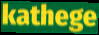
kathege